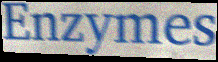
Enzymes